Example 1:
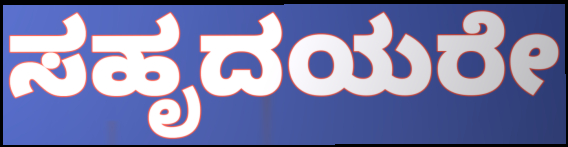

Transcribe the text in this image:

ಸಹೃದಯರೇ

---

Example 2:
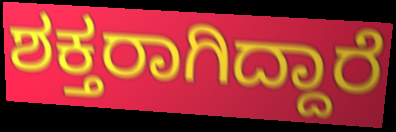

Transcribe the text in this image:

ಶಕ್ತರಾಗಿದ್ದಾರೆ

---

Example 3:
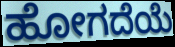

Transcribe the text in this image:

ಹೋಗದೆಯೆ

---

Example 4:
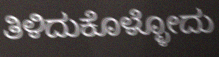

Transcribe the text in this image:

ತಿಳಿದುಕೊಳ್ಳೋದು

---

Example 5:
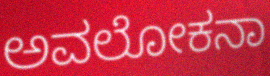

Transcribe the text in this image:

ಅವಲೋಕನಾ